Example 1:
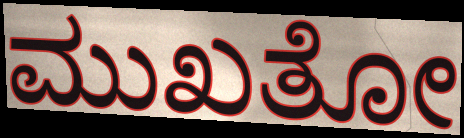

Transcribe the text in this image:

ಮುಖತೋ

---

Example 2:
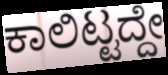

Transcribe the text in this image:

ಕಾಲಿಟ್ಟದ್ದೇ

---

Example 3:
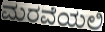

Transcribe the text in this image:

ಮರವೆಯಲಿ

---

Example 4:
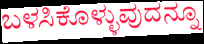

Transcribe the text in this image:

ಬಳಸಿಕೊಳ್ಳುವುದನ್ನೂ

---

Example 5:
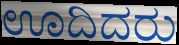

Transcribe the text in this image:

ಊದಿದರು